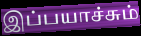
இப்பயாச்சும்